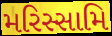
મરિસ્સામિ